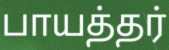
பாயத்தர்